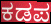
ಕಡಪ